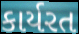
કાર્યરત